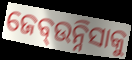
ଜେବ୍ଉନ୍ନିସାକୁ